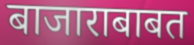
बाजाराबाबत